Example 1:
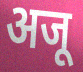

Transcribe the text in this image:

अजू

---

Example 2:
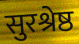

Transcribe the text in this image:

सुरश्रेष्ठ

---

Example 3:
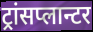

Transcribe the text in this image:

ट्रांसप्लान्टर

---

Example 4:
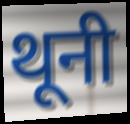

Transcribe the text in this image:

थूनी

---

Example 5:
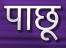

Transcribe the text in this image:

पाछू